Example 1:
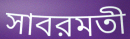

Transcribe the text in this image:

সাবরমতী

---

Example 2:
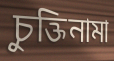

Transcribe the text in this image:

চুক্তিনামা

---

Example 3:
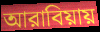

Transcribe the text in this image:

আরাবিয়ায়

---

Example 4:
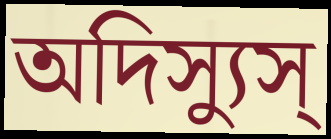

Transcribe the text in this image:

অদিস্যুস্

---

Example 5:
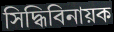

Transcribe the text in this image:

সিদ্ধিবিনায়ক